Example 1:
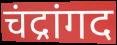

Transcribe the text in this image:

चंद्रांगद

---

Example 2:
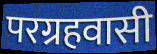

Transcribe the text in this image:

परग्रहवासी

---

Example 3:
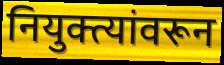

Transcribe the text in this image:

नियुक्त्यांवरून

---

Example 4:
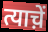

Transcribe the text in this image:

त्याच़ें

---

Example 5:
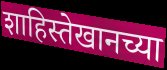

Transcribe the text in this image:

शाहिस्तेखानच्या